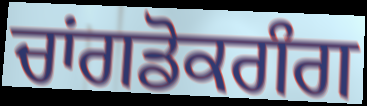
ਚਾਂਗਡੋਕਗੰਗ